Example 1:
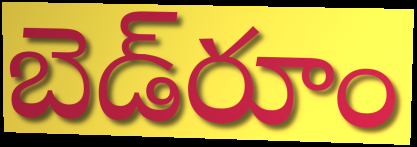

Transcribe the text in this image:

బెడ్‌రూం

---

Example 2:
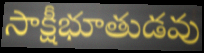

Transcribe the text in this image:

సాక్షీభూతుడవు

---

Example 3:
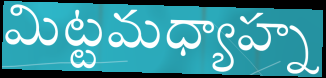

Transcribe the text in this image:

మిట్టమధ్యాహ్న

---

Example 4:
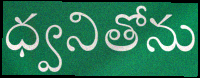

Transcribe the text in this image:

ధ్వనితోను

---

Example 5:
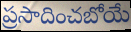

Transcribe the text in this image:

ప్రసాదించబోయే